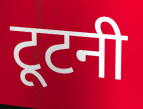
टूटनी